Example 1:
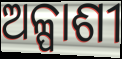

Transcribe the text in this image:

ଅଳ୍ପାଶୀ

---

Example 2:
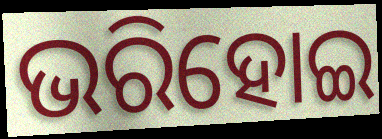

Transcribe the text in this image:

ଭରିହୋଇ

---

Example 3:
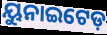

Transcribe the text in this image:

ୟୁନାଇଟେଡ଼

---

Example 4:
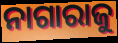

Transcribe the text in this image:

ନାଗାରାଜୁ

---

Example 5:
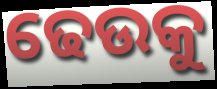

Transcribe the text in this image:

ଢେଉକୁ